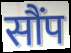
सौंप